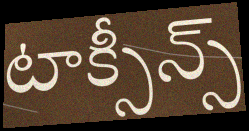
టాక్సీన్స్